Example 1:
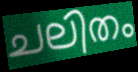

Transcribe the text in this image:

ചലിതം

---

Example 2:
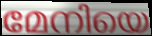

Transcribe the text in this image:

മേനിയെ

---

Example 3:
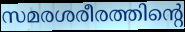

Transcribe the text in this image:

സമരശരീരത്തിന്റെ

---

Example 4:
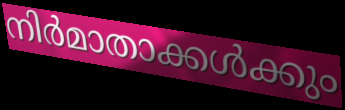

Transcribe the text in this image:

നിർമാതാക്കൾക്കും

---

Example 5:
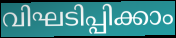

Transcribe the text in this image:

വിഘടിപ്പിക്കാം